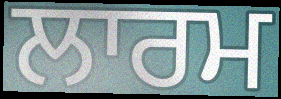
ਲਾਰਮ